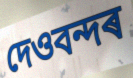
দেওবন্দৰ